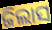
ଜିଲାସ